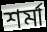
শর্মা